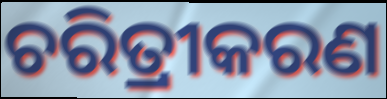
ଚରିତ୍ରୀକରଣ